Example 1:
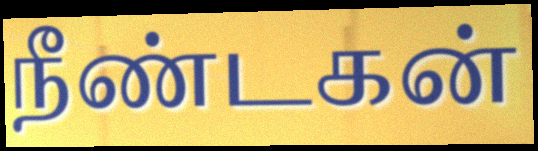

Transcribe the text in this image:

நீண்டகன்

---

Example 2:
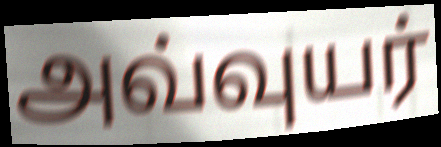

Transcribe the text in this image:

அவ்வுயர்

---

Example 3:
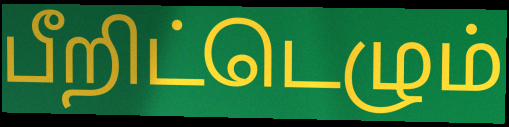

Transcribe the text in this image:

பீறிட்டெழும்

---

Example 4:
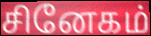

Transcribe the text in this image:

சினேகம்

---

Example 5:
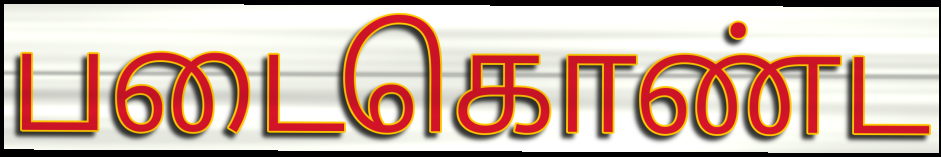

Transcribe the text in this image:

படைகொண்ட